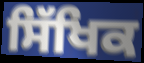
ਸਿੱਖਿਕ